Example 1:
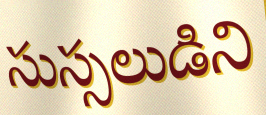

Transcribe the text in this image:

సుస్సలుడిని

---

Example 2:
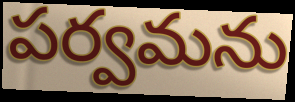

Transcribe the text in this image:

పర్వమను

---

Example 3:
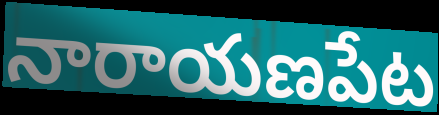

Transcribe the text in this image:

నారాయణపేట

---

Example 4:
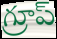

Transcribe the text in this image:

గ్రూప్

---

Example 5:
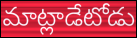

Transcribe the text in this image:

మాట్లాడేటోడు